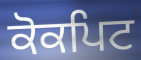
ਕੋਕਪਿਟ